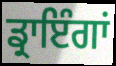
ਡ੍ਰਾਇੰਗਾਂ